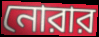
নোরার